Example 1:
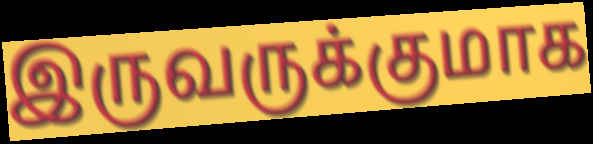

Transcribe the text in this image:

இருவருக்குமாக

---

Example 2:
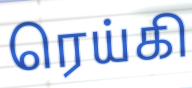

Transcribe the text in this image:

ரெய்கி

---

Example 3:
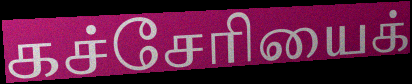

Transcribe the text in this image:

கச்சேரியைக்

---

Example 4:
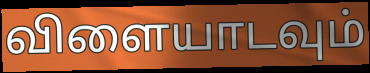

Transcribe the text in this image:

விளையாடவும்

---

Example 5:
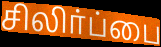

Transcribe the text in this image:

சிலிர்ப்பை